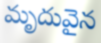
మృదువైన